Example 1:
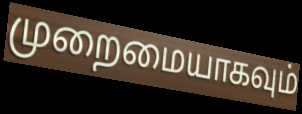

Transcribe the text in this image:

முறைமையாகவும்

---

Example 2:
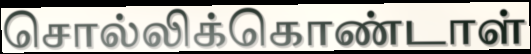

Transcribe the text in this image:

சொல்லிக்கொண்டாள்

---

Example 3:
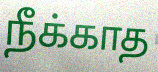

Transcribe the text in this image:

நீக்காத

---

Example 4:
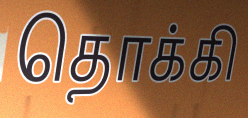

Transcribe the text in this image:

தொக்கி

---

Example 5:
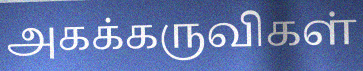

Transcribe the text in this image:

அகக்கருவிகள்